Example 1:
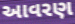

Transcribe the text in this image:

આવરણ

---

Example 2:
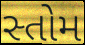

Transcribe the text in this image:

સ્તોમ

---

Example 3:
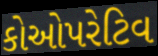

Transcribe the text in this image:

કોઓપરેટિવ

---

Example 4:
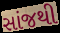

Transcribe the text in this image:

સાંજથી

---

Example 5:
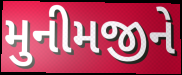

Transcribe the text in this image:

મુનીમજીને